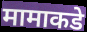
मामाकडे